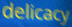
delicacy